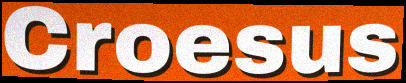
Croesus